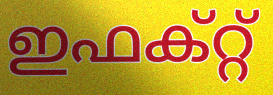
ഇഫക്റ്റ്